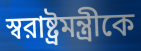
স্বরাষ্ট্রমন্ত্রীকে